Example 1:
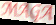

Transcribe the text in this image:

MAGA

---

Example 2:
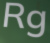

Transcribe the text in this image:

Rg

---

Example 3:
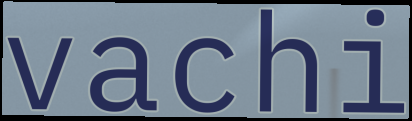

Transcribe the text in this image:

vachi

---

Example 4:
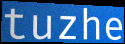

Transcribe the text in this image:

tuzhe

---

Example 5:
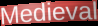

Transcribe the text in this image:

Medieval